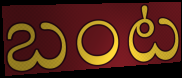
బంట